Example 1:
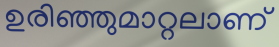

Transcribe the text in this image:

ഉരിഞ്ഞുമാറ്റലാണ്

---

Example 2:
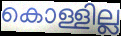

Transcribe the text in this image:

കൊള്ളില്ല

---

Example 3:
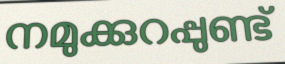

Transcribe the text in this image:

നമുക്കുറപ്പുണ്ട്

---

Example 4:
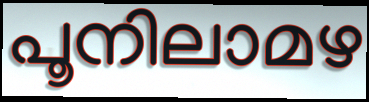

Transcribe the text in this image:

പൂനിലാമഴ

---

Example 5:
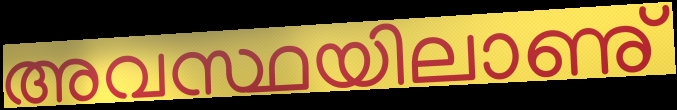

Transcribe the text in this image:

അവസ്ഥയിലാണു്